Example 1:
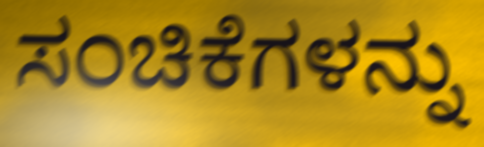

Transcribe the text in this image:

ಸಂಚಿಕೆಗಳನ್ನು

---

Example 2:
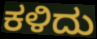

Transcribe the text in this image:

ಕಳಿದು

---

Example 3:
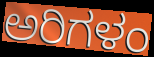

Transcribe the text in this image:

ಅರಿಗಳಂ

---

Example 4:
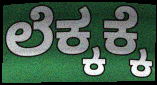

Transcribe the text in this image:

ಲೆಕ್ಕಕ್ಕೆ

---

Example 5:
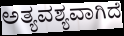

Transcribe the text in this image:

ಅತ್ಯವಶ್ಯವಾಗಿದೆ